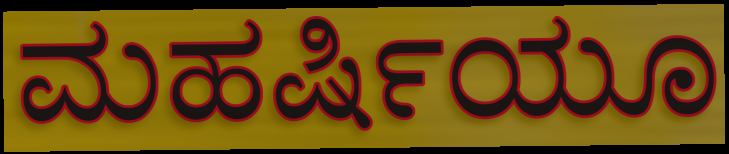
ಮಹರ್ಷಿಯೂ